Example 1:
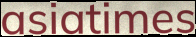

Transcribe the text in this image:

asiatimes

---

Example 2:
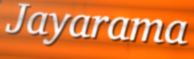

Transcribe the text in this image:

Jayarama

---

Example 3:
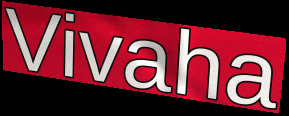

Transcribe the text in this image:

Vivaha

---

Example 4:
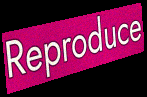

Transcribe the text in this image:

Reproduce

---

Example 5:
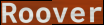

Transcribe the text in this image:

Roover